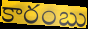
కారంబు